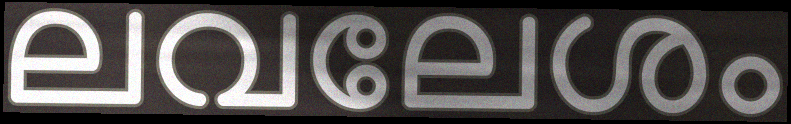
ലവലേശം